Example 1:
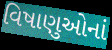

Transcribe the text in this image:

વિષાણુઓનાં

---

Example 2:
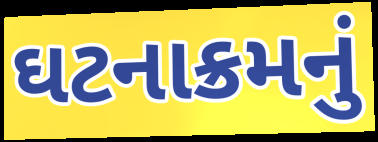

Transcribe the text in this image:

ઘટનાક્રમનું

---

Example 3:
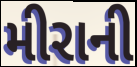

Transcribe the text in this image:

મીરાની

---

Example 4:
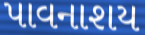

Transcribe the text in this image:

પાવનાશય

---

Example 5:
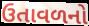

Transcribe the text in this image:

ઉતાવળનો